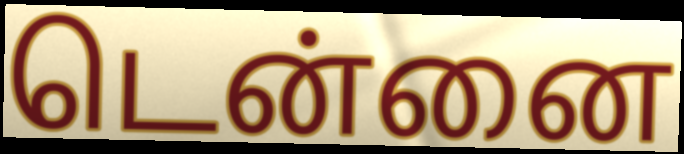
டென்னை